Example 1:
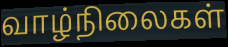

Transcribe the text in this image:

வாழ்நிலைகள்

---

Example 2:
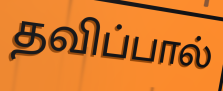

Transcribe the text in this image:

தவிப்பால்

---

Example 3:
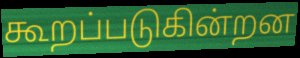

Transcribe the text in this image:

கூறப்படுகின்றன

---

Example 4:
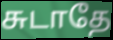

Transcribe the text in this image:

சுடாதே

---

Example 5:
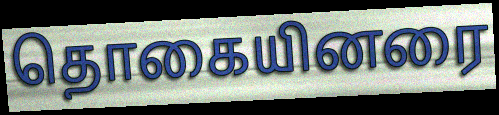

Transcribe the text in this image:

தொகையினரை